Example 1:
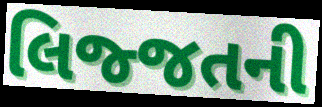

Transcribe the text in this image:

લિજ્જતની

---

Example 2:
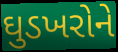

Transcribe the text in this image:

ઘુડખરોને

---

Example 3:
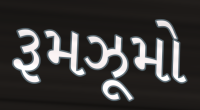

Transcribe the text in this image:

રૂમઝૂમો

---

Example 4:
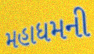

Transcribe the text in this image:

મહાધમની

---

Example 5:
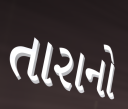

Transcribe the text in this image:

તારાનો